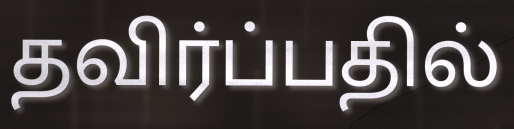
தவிர்ப்பதில்